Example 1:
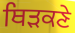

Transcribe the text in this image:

ਥਿੜਕਣੇ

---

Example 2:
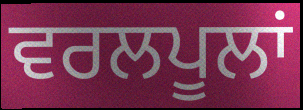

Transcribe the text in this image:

ਵਰਲਪੂਲਾਂ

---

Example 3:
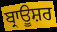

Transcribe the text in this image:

ਬ੍ਰਾਊਸ਼ਰ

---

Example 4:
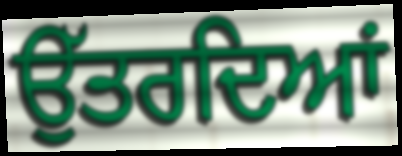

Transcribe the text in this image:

ਉੱਤਰਦਿਆਂ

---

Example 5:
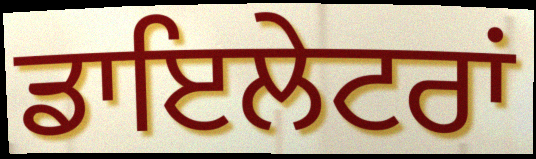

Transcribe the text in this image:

ਡਾਇਲੇਟਰਾਂ